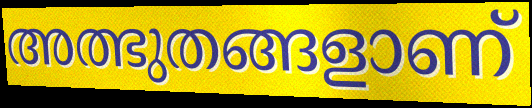
അത്ഭുതങ്ങളാണ്